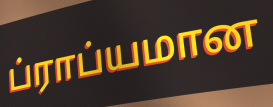
ப்ராப்யமான